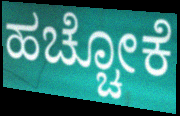
ಹಚ್ಚೋಕೆ